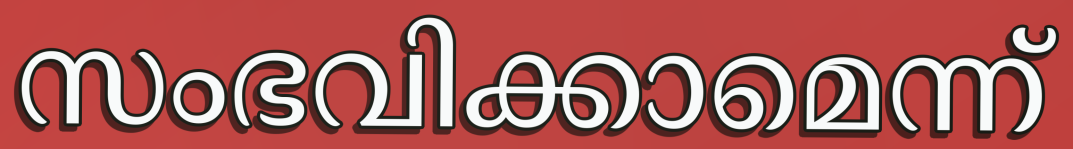
സംഭവിക്കാമെന്ന്